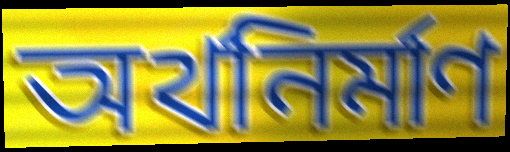
অর্থনির্মাণ